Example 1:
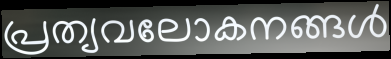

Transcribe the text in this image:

പ്രത്യവലോകനങ്ങൾ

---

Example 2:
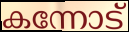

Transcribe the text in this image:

കന്നോട്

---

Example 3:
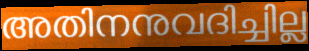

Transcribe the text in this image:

അതിനനുവദിച്ചില്ല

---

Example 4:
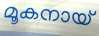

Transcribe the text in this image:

മൂകനായ്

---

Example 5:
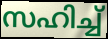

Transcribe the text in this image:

സഹിച്ച്